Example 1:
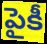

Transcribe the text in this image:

పైకీ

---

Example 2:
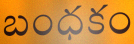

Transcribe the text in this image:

బంధకం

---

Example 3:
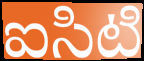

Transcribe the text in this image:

ఐసిటి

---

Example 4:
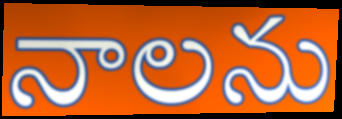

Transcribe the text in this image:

నాలను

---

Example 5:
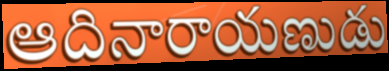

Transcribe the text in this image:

ఆదినారాయణుడు